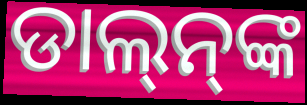
ଡାଲ୍‌ନ୍‌ଙ୍କ